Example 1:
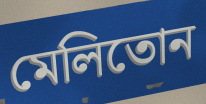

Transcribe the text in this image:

মেলিতোন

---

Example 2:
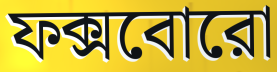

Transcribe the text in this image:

ফক্সবোরো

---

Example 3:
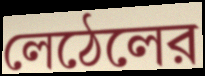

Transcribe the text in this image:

লেঠেলের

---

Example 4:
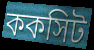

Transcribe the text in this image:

ককসিট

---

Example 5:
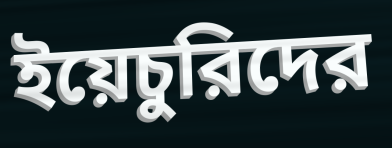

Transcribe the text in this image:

ইয়েচুরিদের